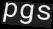
pgs